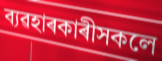
ব্যৱহাৰকাৰীসকলে